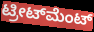
ಟ್ರೀಟ್‌ಮೆಂಟ್